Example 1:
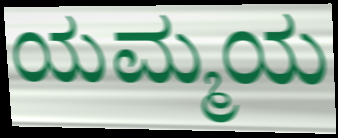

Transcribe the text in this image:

ಯಮ್ಮಯ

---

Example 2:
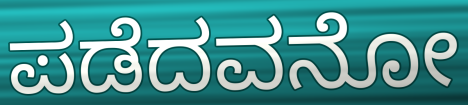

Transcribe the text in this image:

ಪಡೆದವನೋ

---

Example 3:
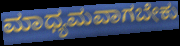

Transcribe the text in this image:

ಮಾಧ್ಯಮವಾಗಬೇಕು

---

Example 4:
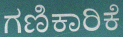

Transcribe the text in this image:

ಗಣಿಕಾರಿಕೆ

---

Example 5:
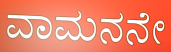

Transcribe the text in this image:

ವಾಮನನೇ